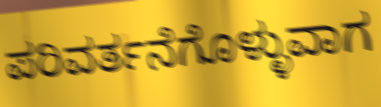
ಪರಿವರ್ತನೆಗೊಳ್ಳುವಾಗ